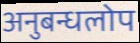
अनुबन्धलोप